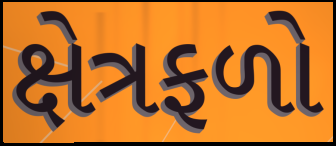
ક્ષેત્રફળો